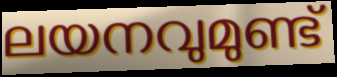
ലയനവുമുണ്ട്